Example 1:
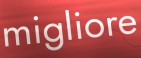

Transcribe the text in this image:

migliore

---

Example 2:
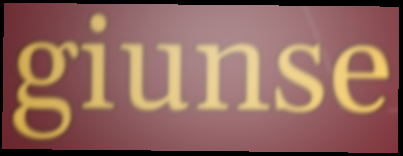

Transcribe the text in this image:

giunse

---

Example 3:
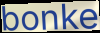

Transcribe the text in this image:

bonke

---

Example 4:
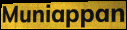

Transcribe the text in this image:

Muniappan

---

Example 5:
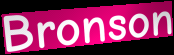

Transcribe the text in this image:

Bronson